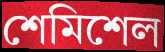
শেমিশেল